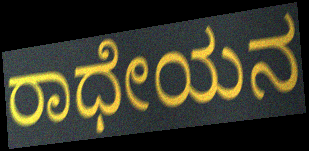
ರಾಧೇಯನ